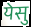
येसु